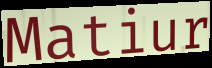
Matiur